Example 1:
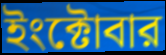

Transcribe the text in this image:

ইংক্টোবার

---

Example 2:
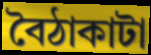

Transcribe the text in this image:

বৈঠাকাটা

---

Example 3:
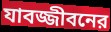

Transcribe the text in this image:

যাবজ্জীবনের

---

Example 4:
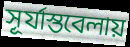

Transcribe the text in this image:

সূর্যাস্তবেলায়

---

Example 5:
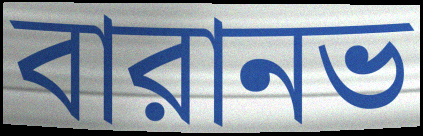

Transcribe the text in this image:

বারানভ